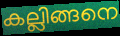
കല്ലിങ്ങനെ